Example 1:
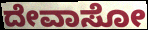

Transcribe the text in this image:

ದೇವಾಸೋ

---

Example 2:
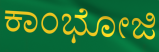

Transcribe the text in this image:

ಕಾಂಭೋಜಿ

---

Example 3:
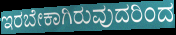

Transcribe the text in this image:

ಇರಬೇಕಾಗಿರುವುದರಿಂದ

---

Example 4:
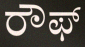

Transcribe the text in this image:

ರೌಫ್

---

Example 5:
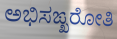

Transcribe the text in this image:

ಅಭಿಸಙ್ಖರೋತಿ